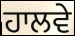
ਹਾਲਵੇ